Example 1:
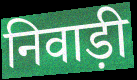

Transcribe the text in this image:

निवाड़ी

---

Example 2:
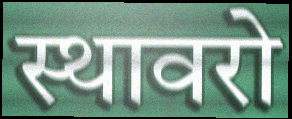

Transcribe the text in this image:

स्थावरो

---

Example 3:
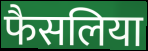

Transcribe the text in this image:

फैसलिया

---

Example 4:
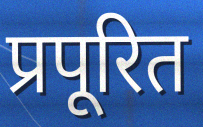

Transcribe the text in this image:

प्रपूरित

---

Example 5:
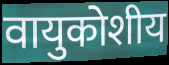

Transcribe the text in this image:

वायुकोशीय